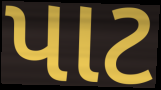
પાટ